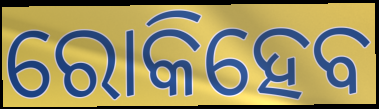
ରୋକିହେବ